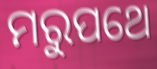
ମରୁପଥେ